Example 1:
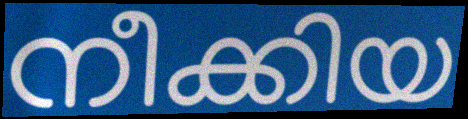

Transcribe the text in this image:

നീക്കിയ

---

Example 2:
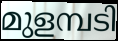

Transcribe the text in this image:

മുളമ്പടി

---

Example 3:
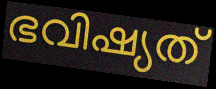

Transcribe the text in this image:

ഭവിഷ്യത്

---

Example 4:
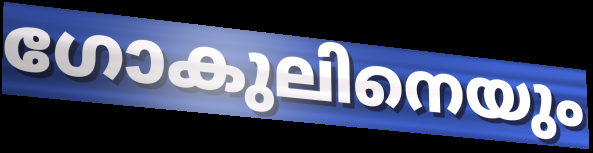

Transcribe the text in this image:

ഗോകുലിനെയും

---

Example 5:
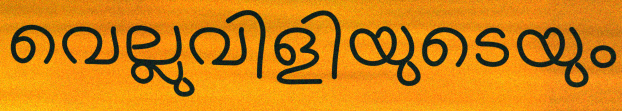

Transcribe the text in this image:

വെല്ലുവിളിയുടെയും